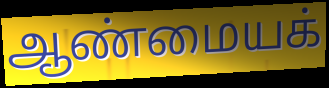
ஆண்மையக்